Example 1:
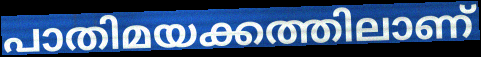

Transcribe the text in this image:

പാതിമയക്കത്തിലാണ്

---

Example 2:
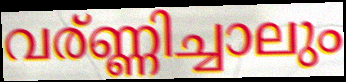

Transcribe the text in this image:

വര്ണ്ണിച്ചാലും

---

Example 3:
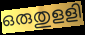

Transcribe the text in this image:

ഒരുതുളളി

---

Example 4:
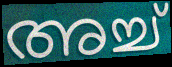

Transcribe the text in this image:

അച്ച്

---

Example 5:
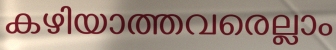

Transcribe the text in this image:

കഴിയാത്തവരെല്ലാം